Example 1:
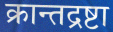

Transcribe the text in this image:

क्रान्तद्रष्टा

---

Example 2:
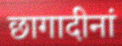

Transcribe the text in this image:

छागादीनां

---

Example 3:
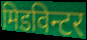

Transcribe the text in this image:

मिडविन्टर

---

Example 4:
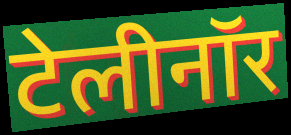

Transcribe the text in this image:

टेलीनॉर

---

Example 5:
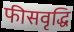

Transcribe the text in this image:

फीसवृद्धि